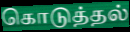
கொடுத்தல்